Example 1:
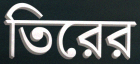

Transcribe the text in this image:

তিরের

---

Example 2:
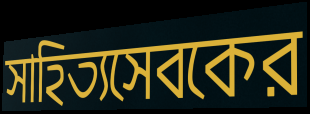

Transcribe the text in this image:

সাহিত্যসেবকের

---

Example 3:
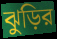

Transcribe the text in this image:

ঝুড়ির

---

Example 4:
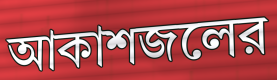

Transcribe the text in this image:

আকাশজলের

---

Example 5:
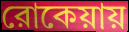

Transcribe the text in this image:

রোকেয়ায়